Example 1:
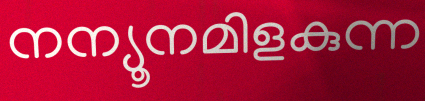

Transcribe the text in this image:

നന്യൂനമിളകുന്ന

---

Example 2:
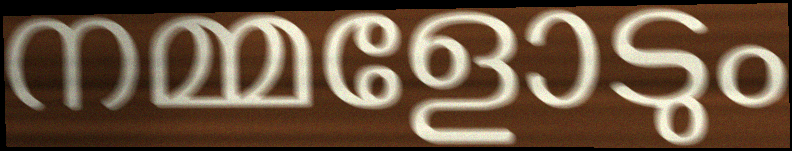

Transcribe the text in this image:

നമ്മളോടും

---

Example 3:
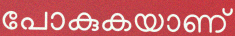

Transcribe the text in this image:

പോകുകയാണ്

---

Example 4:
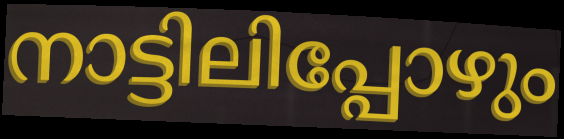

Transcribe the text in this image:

നാട്ടിലിപ്പോഴും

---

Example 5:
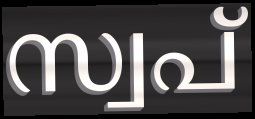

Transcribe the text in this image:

സ്വപ്